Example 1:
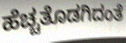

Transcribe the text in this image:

ಹೆಚ್ಚತೊಡಗಿದಂತೆ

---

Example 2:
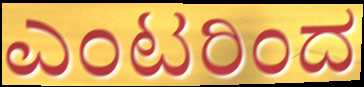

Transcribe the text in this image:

ಎಂಟರಿಂದ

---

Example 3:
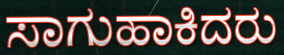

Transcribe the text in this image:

ಸಾಗುಹಾಕಿದರು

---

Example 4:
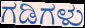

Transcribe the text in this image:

ಗಡಿಗಳು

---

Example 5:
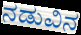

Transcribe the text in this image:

ನಡುವಿನ